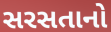
સરસતાનો